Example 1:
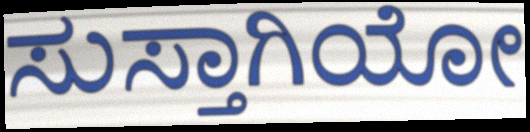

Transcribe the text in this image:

ಸುಸ್ತಾಗಿಯೋ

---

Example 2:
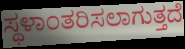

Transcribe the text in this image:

ಸ್ಥಳಾಂತರಿಸಲಾಗುತ್ತದೆ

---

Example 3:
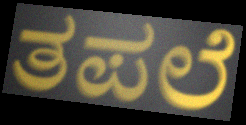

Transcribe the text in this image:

ತಪಲೆ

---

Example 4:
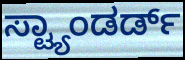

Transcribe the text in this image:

ಸ್ಟ್ಯಾಂಡರ್ಡ್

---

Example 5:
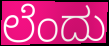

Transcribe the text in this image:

ಲೆಂದು